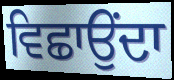
ਵਿਛਾਉਂਦਾ